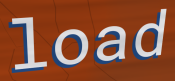
load